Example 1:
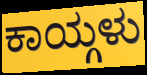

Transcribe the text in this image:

ಕಾಯ್ಗಳು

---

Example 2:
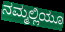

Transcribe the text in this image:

ನಮ್ಮಲ್ಲಿಯೂ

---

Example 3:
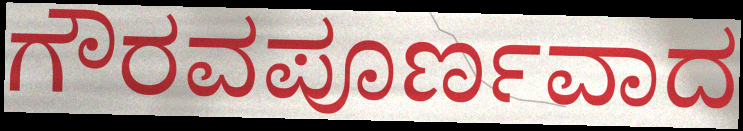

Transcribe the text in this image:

ಗೌರವಪೂರ್ಣವಾದ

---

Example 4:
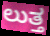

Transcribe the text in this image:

ಲುತ್ತ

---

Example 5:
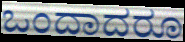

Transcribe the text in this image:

ಒಂದಾದರೂ